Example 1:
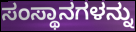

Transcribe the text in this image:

ಸಂಸ್ಥಾನಗಳನ್ನು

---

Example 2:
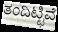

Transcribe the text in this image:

ತಂದಿಟ್ಟಿವೆ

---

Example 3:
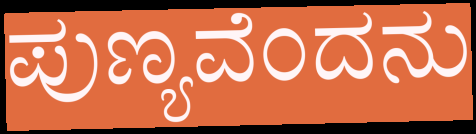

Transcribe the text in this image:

ಪುಣ್ಯವೆಂದನು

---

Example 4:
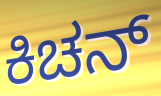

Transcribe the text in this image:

ಕಿಚನ್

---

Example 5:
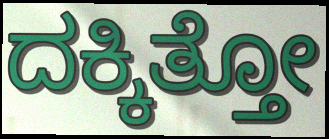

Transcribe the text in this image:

ದಕ್ಕಿತ್ತೋ